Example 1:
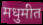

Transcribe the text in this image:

मधुमीत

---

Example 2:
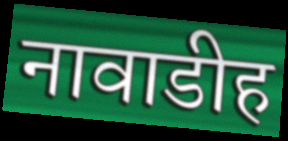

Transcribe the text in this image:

नावाडीह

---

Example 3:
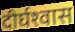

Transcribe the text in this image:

दीर्घश्वास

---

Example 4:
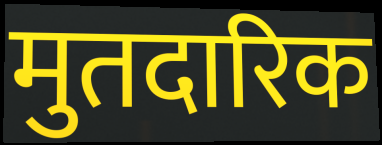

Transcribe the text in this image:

मुतदारिक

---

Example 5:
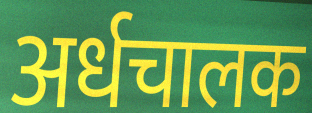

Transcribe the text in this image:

अर्धचालक